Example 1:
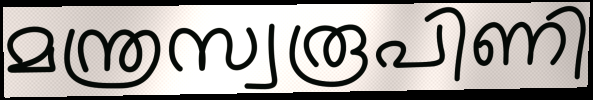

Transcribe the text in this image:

മന്ത്രസ്വരൂപിണി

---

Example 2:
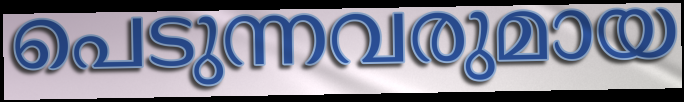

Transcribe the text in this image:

പെടുന്നവരുമായ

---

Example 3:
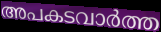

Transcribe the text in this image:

അപകടവാർത്ത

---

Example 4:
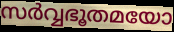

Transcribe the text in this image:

സർവ്വഭൂതമയോ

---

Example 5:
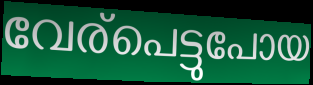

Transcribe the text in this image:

വേര്പെട്ടുപോയ